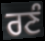
ਰਣੰ